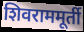
शिवराममूर्ती